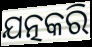
ଯତ୍ନକରି